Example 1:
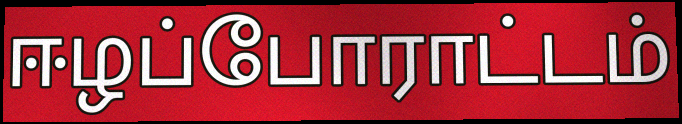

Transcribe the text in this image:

ஈழப்போராட்டம்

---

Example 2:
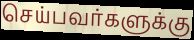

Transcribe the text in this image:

செய்பவர்களுக்கு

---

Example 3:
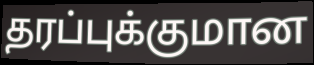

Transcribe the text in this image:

தரப்புக்குமான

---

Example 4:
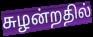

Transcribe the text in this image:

சுழன்றதில்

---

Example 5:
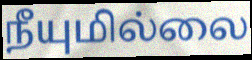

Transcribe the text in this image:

நீயுமில்லை